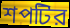
শপটির